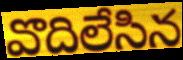
వొదిలేసిన